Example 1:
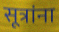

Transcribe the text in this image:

सूत्रांना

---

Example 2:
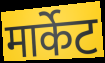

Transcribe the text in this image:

मार्केट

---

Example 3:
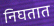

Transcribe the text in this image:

निघतात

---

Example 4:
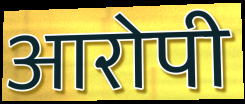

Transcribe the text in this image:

आरोपी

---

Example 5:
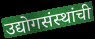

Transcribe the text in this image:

उद्योगसंस्थांची